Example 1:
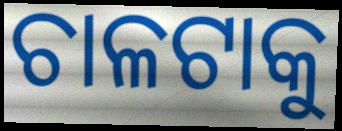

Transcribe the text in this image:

ଚାଳଟାକୁ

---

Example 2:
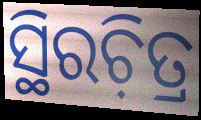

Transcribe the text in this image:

ସ୍ଥିରଚ଼ିତ୍ର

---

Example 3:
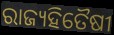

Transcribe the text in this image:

ରାଜ୍ୟହିତୈଷୀ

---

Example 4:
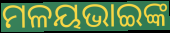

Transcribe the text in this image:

ମଳୟଭାଇଙ୍କ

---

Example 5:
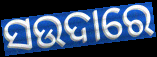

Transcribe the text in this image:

ସଉଦାରେ